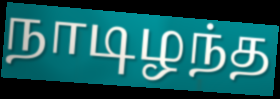
நாடிழந்த